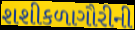
શશીકળાગૌરીની